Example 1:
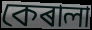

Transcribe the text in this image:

কেৰালা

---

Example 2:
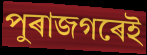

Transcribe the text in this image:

পুৰাজগৰেই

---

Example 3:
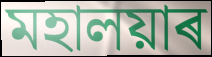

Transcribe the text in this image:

মহালয়াৰ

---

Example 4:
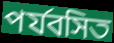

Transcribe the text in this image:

পৰ্যবসিত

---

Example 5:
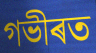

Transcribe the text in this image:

গভীৰত